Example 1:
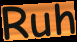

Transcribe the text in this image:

Ruh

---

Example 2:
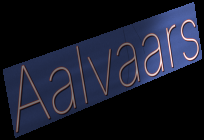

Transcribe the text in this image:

Aalvaars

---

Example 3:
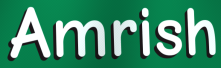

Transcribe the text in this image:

Amrish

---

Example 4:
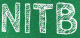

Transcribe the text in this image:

NITB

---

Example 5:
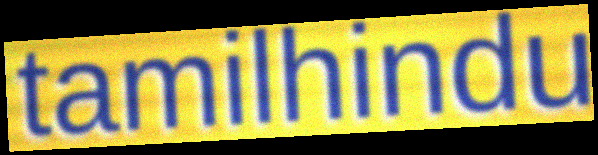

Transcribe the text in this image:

tamilhindu